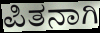
ಪಿತನಾಗಿ